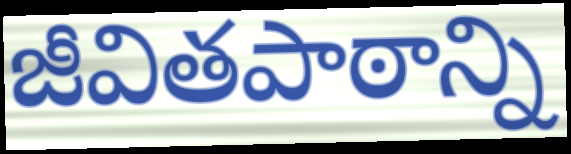
జీవితపాఠాన్ని